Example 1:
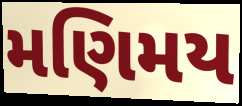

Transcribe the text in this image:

મણિમય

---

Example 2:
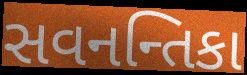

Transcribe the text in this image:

સવનન્તિકા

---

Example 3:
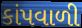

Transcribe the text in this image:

કાંપવાળી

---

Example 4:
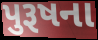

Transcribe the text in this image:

પુરૂષના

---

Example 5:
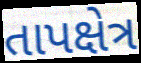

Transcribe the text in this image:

તાપક્ષેત્ર